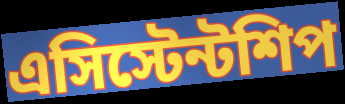
এসিস্টেন্টশিপ